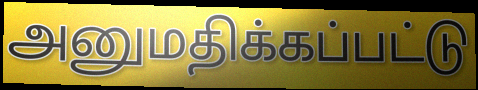
அனுமதிக்கப்பட்டு